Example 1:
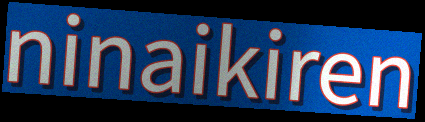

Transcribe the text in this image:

ninaikiren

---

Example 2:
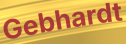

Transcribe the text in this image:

Gebhardt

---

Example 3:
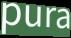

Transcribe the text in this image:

pura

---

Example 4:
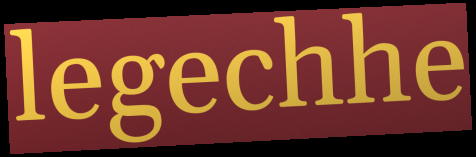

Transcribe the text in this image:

legechhe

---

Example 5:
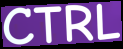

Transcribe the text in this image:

CTRL